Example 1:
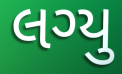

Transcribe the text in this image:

લગ્યુ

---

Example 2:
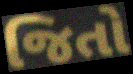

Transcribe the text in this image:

જિતો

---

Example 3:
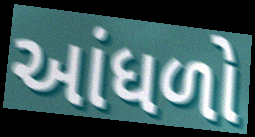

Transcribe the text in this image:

આંધળો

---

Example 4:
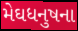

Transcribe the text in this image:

મેઘધનુષના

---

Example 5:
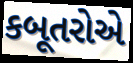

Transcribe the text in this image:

કબૂતરોએ